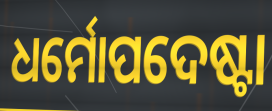
ଧର୍ମୋପଦେଷ୍ଟା